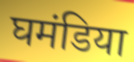
घमंडिया